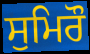
ਸੁਮਿਰੌ